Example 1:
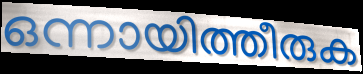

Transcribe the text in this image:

ഒന്നായിത്തീരുക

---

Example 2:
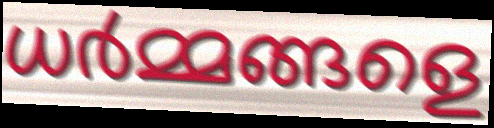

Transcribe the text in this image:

ധർമ്മങ്ങളെ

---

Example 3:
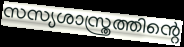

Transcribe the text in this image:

സസ്യശാസ്ത്രത്തിന്റെ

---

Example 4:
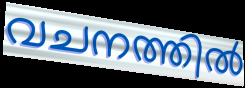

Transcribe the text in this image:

വചനത്തിൽ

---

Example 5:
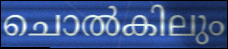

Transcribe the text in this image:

ചൊൽകിലും